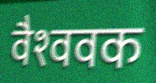
वैश्ववक